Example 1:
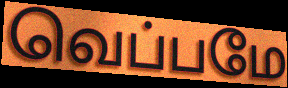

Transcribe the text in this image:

வெப்பமே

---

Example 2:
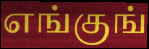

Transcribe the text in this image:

எங்குங்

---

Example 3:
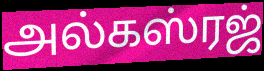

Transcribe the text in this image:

அல்கஸ்ரஜ்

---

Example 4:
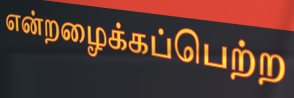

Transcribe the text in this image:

என்றழைக்கப்பெற்ற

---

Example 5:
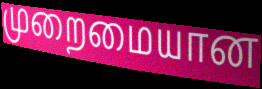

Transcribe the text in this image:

முறைமையான